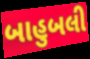
બાહુબલી